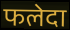
फलेदा